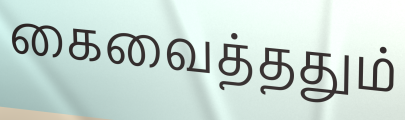
கைவைத்ததும்